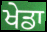
ਖੇਡਾ